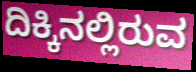
ದಿಕ್ಕಿನಲ್ಲಿರುವ